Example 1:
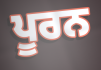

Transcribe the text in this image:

ਪੂਰਨ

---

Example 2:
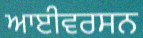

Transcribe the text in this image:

ਆਈਵਰਸਨ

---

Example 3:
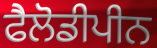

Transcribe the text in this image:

ਫੈਲੋਡੀਪੀਨ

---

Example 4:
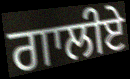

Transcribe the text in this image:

ਗਾਲੀਏ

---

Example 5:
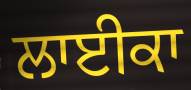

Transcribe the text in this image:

ਲਾਈਕਾ